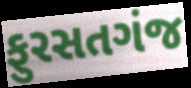
ફુરસતગંજ